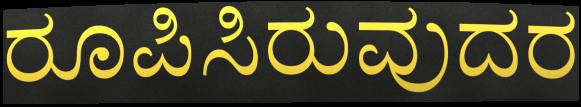
ರೂಪಿಸಿರುವುದರ